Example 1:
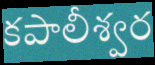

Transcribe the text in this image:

కపాలీశ్వర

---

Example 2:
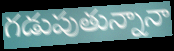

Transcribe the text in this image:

గడుపుతున్నానా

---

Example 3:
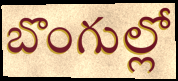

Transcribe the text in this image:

బొంగుల్లో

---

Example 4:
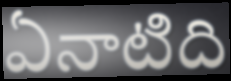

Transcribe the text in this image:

ఏనాటిది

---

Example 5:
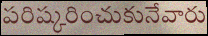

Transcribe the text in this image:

పరిష్కరించుకునేవారు